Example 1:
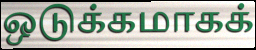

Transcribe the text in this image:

ஒடுக்கமாகக்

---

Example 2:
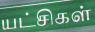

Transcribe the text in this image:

யட்சிகள்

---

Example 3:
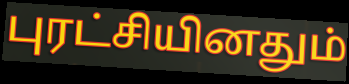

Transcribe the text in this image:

புரட்சியினதும்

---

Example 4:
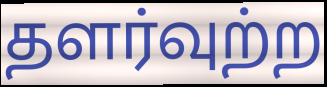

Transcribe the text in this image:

தளர்வுற்ற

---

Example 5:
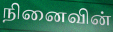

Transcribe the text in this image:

நினைவின்